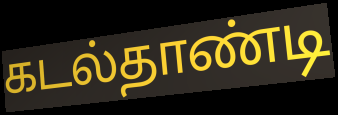
கடல்தாண்டி